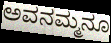
ಅವನಮ್ಮನೂ